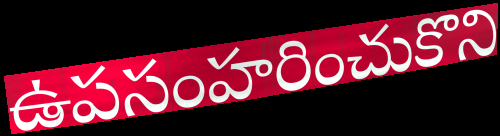
ఉపసంహరించుకొని